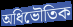
অধিভৌতিক